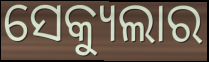
ସେକ୍ୟୁଲାର